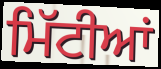
ਮਿੱਟੀਆਂ